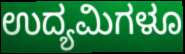
ಉದ್ಯಮಿಗಳೂ